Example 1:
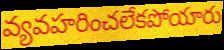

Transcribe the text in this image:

వ్యవహరించలేకపోయారు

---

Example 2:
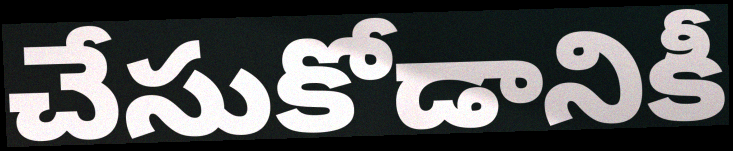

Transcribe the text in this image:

చేసుకోడానికీ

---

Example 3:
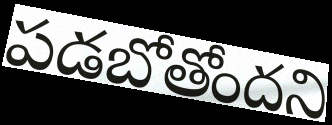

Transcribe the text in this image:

పడబోతోందని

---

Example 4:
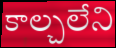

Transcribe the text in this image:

కాల్చలేని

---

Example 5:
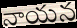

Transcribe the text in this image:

నాయన